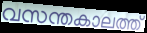
വസന്തകാലത്ത്